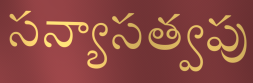
సన్యాసత్వపు